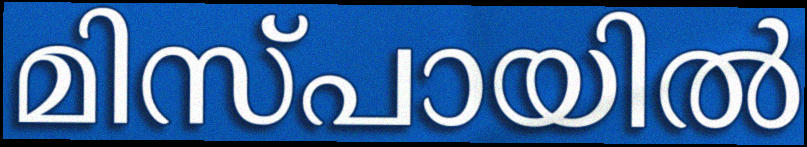
മിസ്പായിൽ